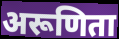
अरूणिता